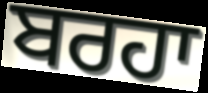
ਬਰਹਾ